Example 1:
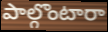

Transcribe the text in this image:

పాల్గొంటారా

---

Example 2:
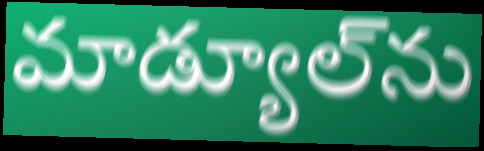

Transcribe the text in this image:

మాడ్యూల్‌ను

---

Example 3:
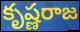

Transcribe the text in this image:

కృష్ణరాజ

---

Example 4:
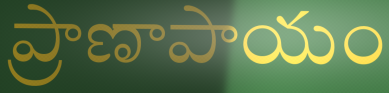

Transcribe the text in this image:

ప్రాణాపాయం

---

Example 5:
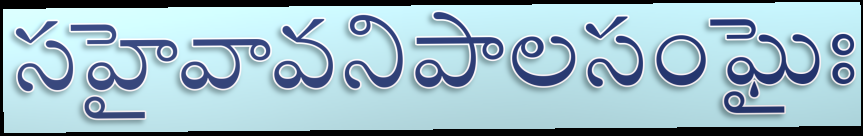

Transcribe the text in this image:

సహైవావనిపాలసంఘైః